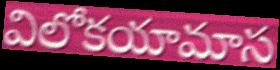
విలోకయామాస